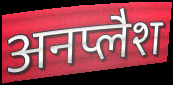
अनप्लैश